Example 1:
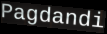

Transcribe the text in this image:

Pagdandi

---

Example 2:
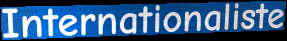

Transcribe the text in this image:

Internationaliste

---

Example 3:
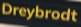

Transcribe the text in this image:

Dreybrodt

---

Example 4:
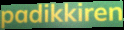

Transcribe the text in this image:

padikkiren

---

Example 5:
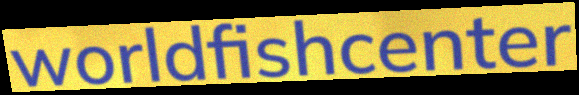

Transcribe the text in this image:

worldfishcenter